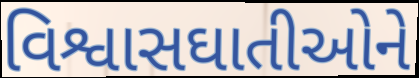
વિશ્વાસઘાતીઓને